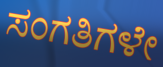
ಸಂಗತಿಗಳೇ